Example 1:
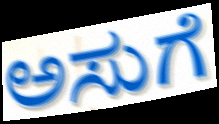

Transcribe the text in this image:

ಅಸುಗೆ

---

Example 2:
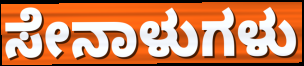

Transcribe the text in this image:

ಸೇನಾಳುಗಳು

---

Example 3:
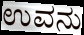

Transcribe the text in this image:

ಉವನು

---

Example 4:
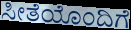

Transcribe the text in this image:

ಸೀತೆಯೊಂದಿಗೆ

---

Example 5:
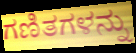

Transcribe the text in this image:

ಗಣಿತಗಳನ್ನು